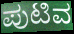
ಪುಟಿವ